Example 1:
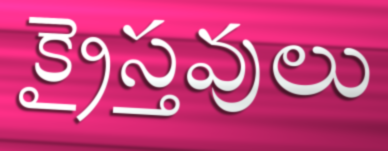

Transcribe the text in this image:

క్రైస్తవులు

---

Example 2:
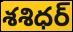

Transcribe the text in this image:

శశిధర్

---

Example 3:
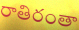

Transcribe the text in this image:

రాతిరంతా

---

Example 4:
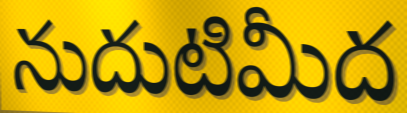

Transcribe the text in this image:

నుదుటిమీద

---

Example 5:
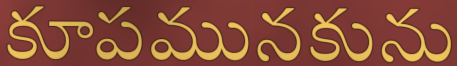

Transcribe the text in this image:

కూపమునకును